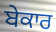
ਬੇਕਾਰ